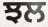
ਝਲ